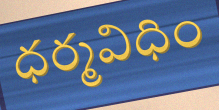
ధర్మవిధిం